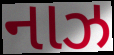
નાઝ